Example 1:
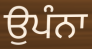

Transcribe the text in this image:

ਉਪੰਨਾ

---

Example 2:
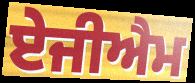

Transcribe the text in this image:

ਏਜੀਐਮ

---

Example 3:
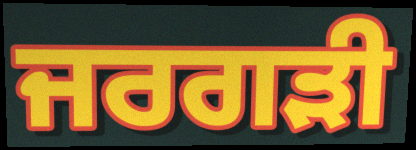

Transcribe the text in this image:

ਜਰਗੜੀ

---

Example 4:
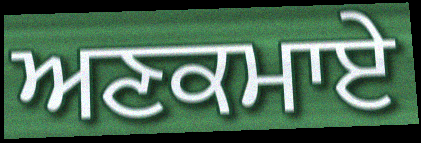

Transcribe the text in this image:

ਅਣਕਮਾਏ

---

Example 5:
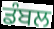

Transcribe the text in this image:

ਡੰਬਲ